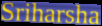
Sriharsha